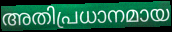
അതിപ്രധാനമായ